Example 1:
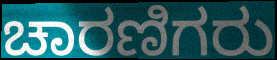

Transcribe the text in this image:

ಚಾರಣಿಗರು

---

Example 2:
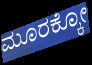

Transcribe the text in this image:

ಮೂರಕ್ಕೋ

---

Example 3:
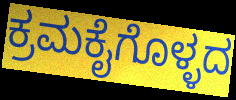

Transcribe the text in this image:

ಕ್ರಮಕೈಗೊಳ್ಳದ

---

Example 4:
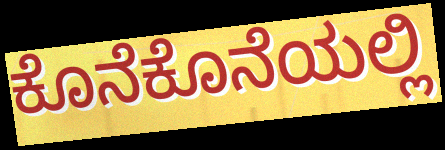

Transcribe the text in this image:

ಕೊನೆಕೊನೆಯಲ್ಲಿ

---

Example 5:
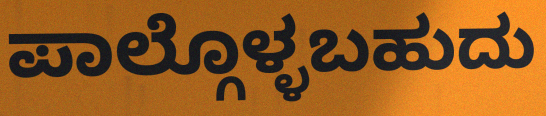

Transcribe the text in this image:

ಪಾಲ್ಗೊಳ್ಳಬಹುದು